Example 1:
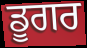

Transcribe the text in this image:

ਡੂਗਰ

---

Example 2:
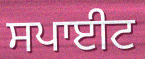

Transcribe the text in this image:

ਸਪਾਈਟ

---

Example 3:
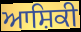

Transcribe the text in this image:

ਆਸ਼ਿਕੀ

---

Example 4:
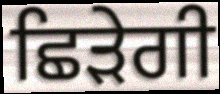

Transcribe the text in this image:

ਛਿੜੇਗੀ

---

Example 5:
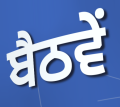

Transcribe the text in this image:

ਬੈਠਵੇਂ